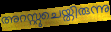
അറസ്റ്റുചെയ്തിരുന്നു